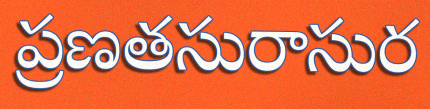
ప్రణతసురాసుర